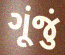
ગૂંજું